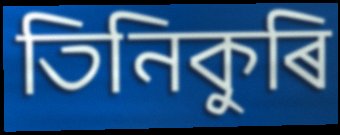
তিনিকুৰি